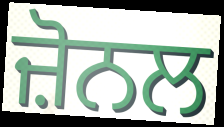
ਜ਼ੋਨਲ